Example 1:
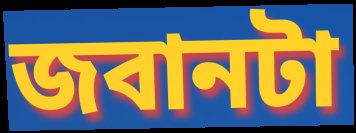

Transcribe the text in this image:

জবানটা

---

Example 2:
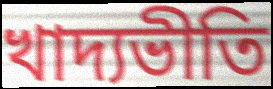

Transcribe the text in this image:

খাদ্যভীতি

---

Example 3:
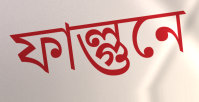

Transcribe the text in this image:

ফাল্গুনে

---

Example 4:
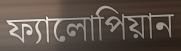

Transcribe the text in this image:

ফ্যালোপিয়ান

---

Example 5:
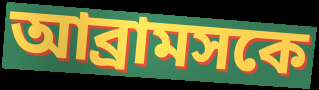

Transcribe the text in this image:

আব্রামসকে